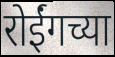
रोईंगच्या